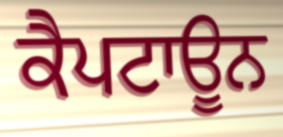
ਕੈਪਟਾਊਨ